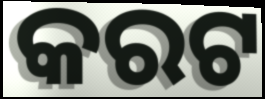
କରଟ